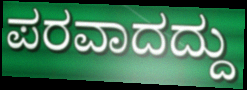
ಪರವಾದದ್ದು